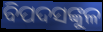
ବିପଦସଙ୍କୁଳ